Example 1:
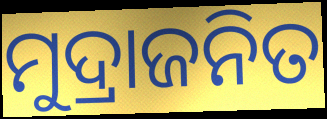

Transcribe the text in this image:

ମୁଦ୍ରାଜନିତ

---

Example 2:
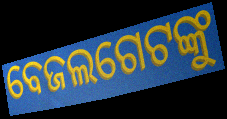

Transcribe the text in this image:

ବେଜଲଗେଟଙ୍କୁ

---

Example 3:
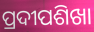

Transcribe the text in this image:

ପ୍ରଦୀପଶିଖା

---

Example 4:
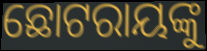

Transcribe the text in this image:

ଛୋଟରାୟଙ୍କୁ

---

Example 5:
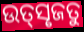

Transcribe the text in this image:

ଉତ୍‌ସୃଜତୁ